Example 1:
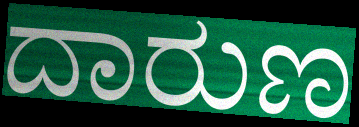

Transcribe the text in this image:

ದಾರುಣ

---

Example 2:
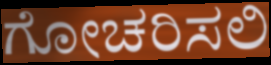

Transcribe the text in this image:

ಗೋಚರಿಸಲಿ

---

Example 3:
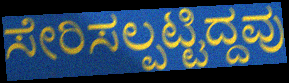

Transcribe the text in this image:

ಸೇರಿಸಲ್ಪಟ್ಟಿದ್ದವು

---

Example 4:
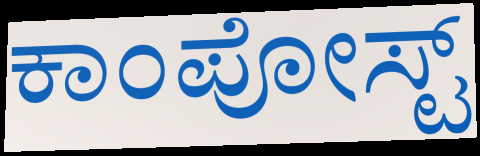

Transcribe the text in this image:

ಕಾಂಪೋಸ್ಟ್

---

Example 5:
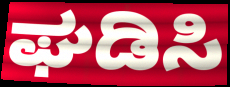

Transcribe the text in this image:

ಘಡಿಸಿ